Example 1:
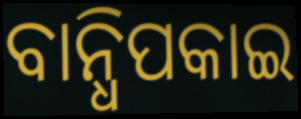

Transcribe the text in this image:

ବାନ୍ଧିପକାଇ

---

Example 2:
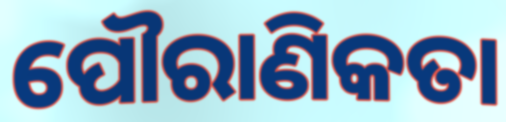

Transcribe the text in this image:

ପୌରାଣିକତା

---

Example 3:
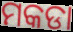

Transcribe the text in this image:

ମକଡା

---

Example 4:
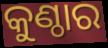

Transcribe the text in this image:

କୁଣ୍ଠାର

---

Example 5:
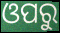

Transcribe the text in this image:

ଓପରୁ